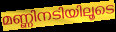
മണ്ണിനടിയിലൂടെ